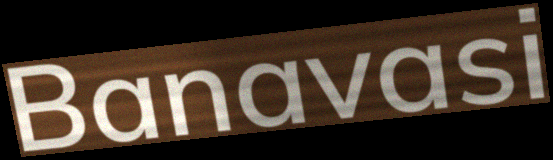
Banavasi